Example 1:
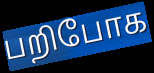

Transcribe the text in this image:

பறிபோக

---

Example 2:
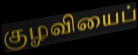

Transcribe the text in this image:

குழவியைப்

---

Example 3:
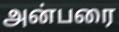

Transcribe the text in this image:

அன்பரை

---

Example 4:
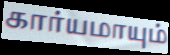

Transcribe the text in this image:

கார்யமாயும்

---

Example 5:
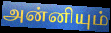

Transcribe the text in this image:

அன்னியும்